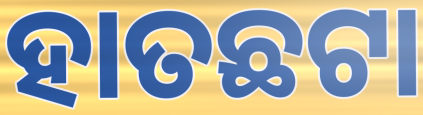
ହାତଛଟା